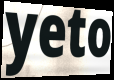
yeto